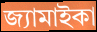
জ্যামাইকা